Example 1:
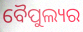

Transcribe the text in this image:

ବୈପୁଲ୍ୟର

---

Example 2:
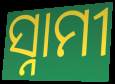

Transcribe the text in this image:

ସ୍ନାମୀ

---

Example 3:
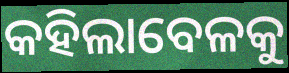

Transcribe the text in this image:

କହିଲାବେଳକୁ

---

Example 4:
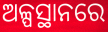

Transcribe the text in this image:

ଅଳ୍ପସ୍ଥାନରେ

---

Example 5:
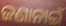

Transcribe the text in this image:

ଜଣାନାଇଁ